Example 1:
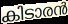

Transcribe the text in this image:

കിടാരൻ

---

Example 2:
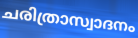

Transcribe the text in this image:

ചരിത്രാസ്വാദനം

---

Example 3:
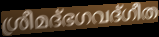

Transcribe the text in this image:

ശ്രീമദ്ഭഗവദ്ഗീത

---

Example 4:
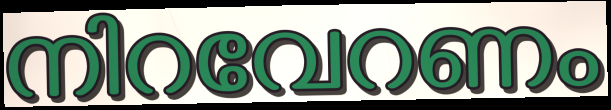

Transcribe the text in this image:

നിറവേറണം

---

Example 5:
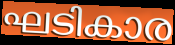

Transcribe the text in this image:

ഘടികാര